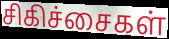
சிகிச்சைகள்